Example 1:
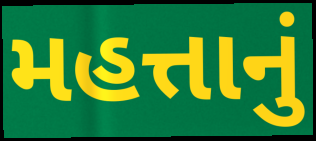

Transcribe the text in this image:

મહત્તાનું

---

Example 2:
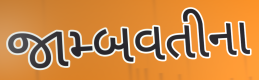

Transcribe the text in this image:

જામ્બવતીના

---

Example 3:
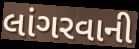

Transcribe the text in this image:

લાંગરવાની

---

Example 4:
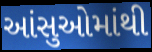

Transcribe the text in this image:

આંસુઓમાંથી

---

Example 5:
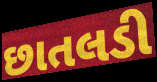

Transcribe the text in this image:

છાતલડી